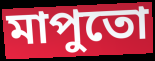
মাপুতো